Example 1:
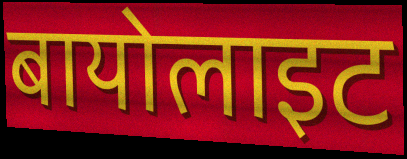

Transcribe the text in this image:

बायोलाइट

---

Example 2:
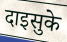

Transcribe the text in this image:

दाइसुके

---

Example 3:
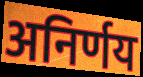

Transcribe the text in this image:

अनिर्णय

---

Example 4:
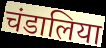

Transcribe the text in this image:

चंडालिया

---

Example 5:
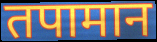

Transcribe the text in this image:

तपामान